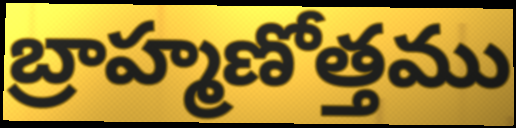
బ్రాహ్మణోత్తము